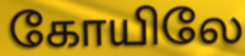
கோயிலே